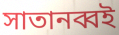
সাতানব্বই